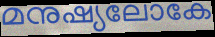
മനുഷ്യലോകേ